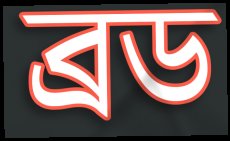
ব্রড